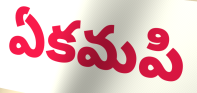
ఏకమపి